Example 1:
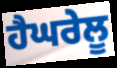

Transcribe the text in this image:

ਹੈਘਰੇਲੂ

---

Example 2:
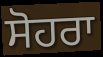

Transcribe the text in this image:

ਸੋਹਰਾ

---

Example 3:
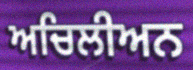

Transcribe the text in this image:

ਅਚਿਲੀਅਨ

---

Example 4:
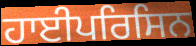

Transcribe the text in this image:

ਹਾਈਪਰਿਸਿਨ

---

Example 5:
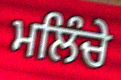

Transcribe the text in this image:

ਮਲਿੰਚੇ